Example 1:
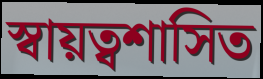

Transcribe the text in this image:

স্বায়ত্বশাসিত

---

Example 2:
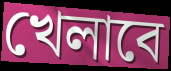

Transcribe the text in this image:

খেলাবে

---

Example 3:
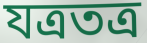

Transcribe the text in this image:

যত্রতত্র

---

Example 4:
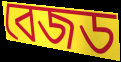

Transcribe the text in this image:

বেজড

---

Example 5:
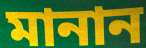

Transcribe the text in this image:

মানান